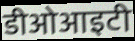
डीओआइटी